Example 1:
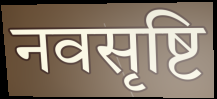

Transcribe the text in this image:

नवसृष्टि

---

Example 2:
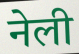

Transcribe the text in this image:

नेली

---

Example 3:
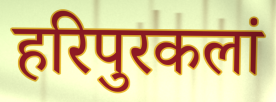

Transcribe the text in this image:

हरिपुरकलां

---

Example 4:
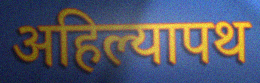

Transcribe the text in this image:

अहिल्यापथ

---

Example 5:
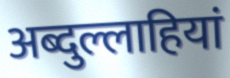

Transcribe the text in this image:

अब्दुल्लाहियां